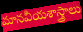
మానవీయశాస్త్రాలు